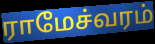
ராமேச்வரம்